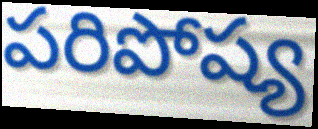
పరిపోష్య